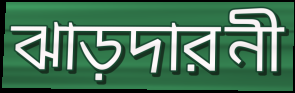
ঝাড়দারনী